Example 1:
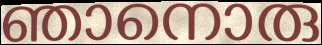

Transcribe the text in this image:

ഞാനൊരു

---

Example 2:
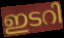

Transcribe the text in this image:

ഇടറി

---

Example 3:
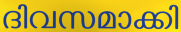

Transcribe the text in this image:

ദിവസമാക്കി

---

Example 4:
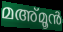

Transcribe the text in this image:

മഅ്മൂൻ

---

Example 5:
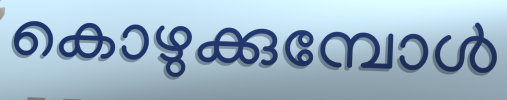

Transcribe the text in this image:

കൊഴുക്കുമ്പോൾ